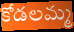
కోడలమ్మ